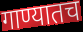
गाण्यातच